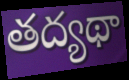
తద్యథా